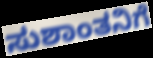
ಸುಶಾಂತನಿಗೆ